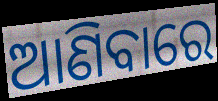
ଆଣିବାରେ